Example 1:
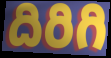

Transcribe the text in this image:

దిరిగి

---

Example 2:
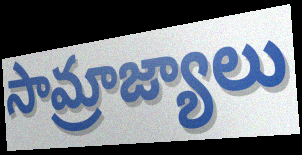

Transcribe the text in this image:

సామ్రాజ్యాలు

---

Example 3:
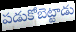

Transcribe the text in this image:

పడుకోబెట్టాడు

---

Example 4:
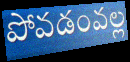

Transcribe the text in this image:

పోవడంవల్ల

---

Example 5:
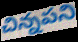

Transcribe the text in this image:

చిన్నపని